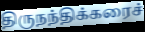
திருநந்திக்கரைச்